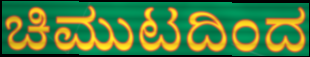
ಚಿಮುಟದಿಂದ